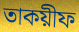
তাকয়ীফ